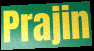
Prajin